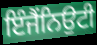
ਇੰਜੈਂਨਿਉਟੀ